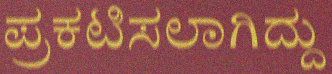
ಪ್ರಕಟಿಸಲಾಗಿದ್ದು